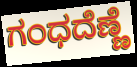
ಗಂಧದೆಣ್ಣೆ